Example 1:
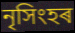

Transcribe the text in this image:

নৃসিংহৰ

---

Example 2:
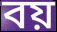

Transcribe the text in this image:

বয়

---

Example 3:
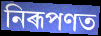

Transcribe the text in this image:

নিৰূপণত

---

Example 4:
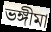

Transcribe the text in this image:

ভঙ্গীমা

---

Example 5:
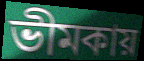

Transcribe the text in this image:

ভীমকায়